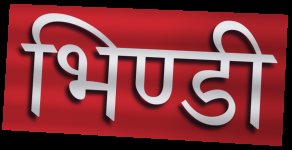
भिण्डी